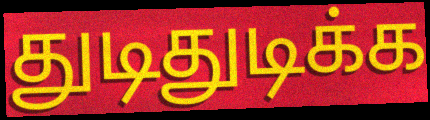
துடிதுடிக்க